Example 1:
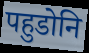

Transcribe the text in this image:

पहुडोनि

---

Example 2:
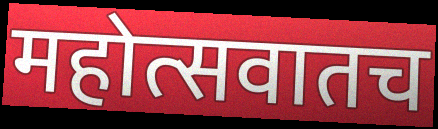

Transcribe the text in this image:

महोत्सवातच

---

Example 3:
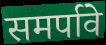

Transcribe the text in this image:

समर्पावे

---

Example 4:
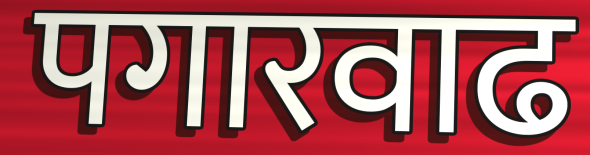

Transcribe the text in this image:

पगारवाढ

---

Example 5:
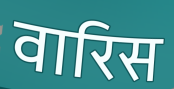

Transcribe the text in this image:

वारिस